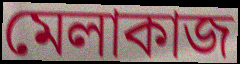
মেলাকাজ